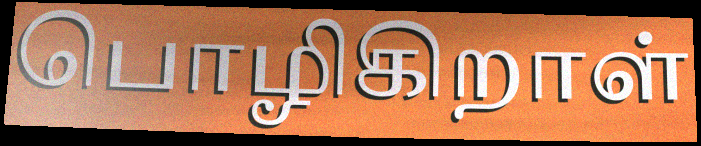
பொழிகிறாள்